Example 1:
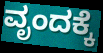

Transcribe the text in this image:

ವೃಂದಕ್ಕೆ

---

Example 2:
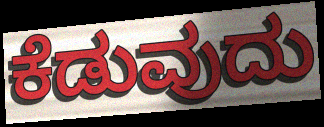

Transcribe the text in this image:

ಕೆಡುವುದು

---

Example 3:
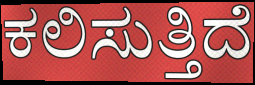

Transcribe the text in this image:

ಕಲಿಸುತ್ತಿದೆ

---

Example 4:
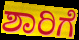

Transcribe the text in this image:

ಶಾರಿಗೆ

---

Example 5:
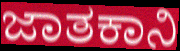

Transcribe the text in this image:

ಜಾತಕಾನಿ